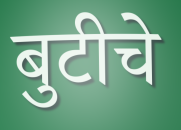
बुटीचे